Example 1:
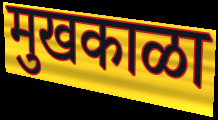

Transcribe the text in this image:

मुखकाळा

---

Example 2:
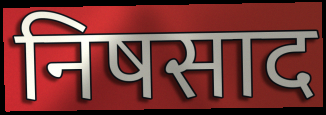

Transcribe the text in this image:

निषसाद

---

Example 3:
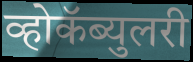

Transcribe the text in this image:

व्होकॅब्युलरी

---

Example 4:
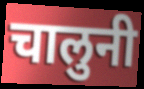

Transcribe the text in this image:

चालुनी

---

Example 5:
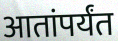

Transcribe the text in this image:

आतांपर्यंत